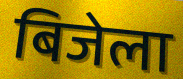
बिजेला